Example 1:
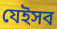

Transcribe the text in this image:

যেইসব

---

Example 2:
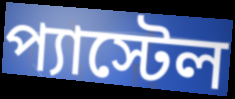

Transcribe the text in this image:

প্যাস্টেল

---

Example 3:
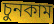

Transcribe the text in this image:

চুনকাম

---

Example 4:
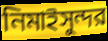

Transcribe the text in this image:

নিমাইসুন্দর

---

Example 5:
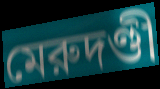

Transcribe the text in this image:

মেরুদণ্ডী